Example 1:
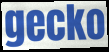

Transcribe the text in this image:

gecko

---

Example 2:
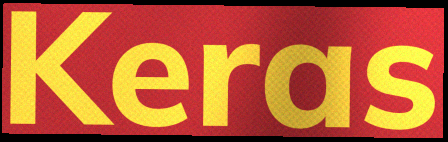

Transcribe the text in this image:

Keras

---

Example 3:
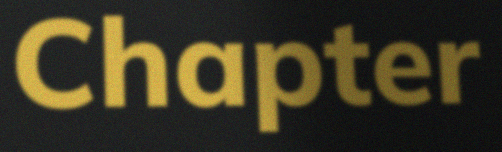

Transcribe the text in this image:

Chapter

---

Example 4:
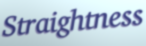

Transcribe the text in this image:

Straightness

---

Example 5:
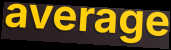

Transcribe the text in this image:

average